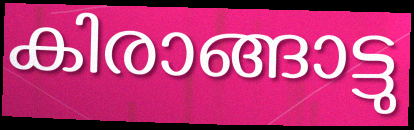
കിരാങ്ങാട്ടു